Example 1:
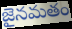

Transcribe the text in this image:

జైనమతం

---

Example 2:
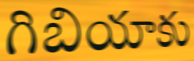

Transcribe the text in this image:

గిబియాకు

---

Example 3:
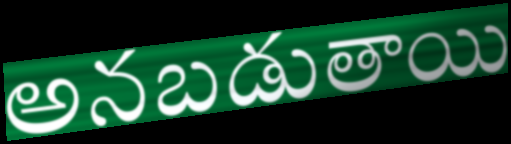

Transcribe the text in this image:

అనబడుతాయి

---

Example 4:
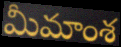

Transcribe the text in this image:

మీమాంశ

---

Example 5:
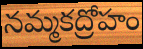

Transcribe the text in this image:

నమ్మకద్రోహం